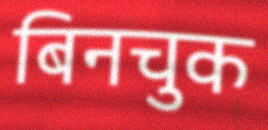
बिनचुक